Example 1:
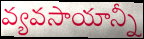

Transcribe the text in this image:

వ్యవసాయాన్నీ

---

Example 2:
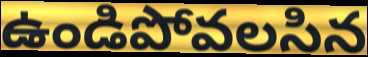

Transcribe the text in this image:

ఉండిపోవలసిన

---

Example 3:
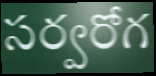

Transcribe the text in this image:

సర్వరోగ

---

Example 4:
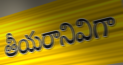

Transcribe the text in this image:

తీయరానివిగా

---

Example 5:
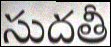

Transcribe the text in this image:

సుదతీ